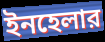
ইনহেলার